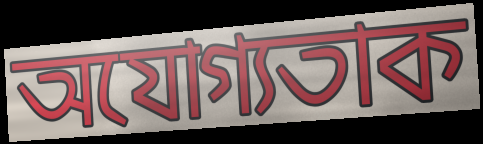
অযোগ্যতাক